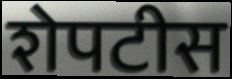
शेपटीस